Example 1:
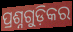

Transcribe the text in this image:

ପ୍ରଶ୍ନଗୁଡ଼ିକର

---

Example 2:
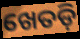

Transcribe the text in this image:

ଖେତଡ଼ି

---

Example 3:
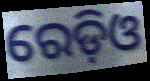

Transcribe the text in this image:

ରେଡ଼ିଓ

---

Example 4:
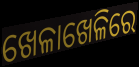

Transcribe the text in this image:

ଖେଳାଖେଳିରେ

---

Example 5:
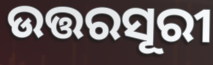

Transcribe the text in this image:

ଉତ୍ତରସୂରୀ